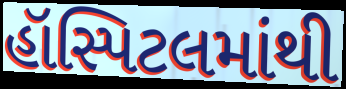
હૉસ્પિટલમાંથી